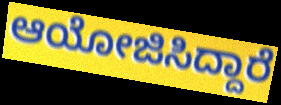
ಆಯೋಜಿಸಿದ್ದಾರೆ